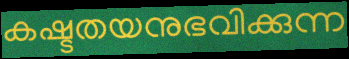
കഷ്ടതയനുഭവിക്കുന്ന